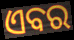
ଏବର